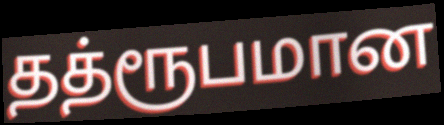
தத்ரூபமான